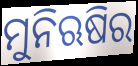
ମୁନିଋଷିର